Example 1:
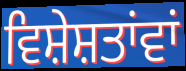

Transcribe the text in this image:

ਵਿਸ਼ੇਸ਼ਤਾਂਵਾਂ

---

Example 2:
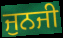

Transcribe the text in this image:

ਜੁਨਜੀ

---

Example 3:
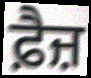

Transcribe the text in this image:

ਫ਼ੈਜ਼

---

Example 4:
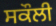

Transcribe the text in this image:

ਸਕੌਲੀ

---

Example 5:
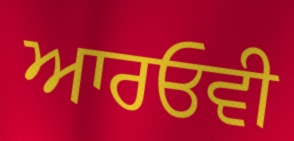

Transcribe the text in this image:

ਆਰਓਵੀ